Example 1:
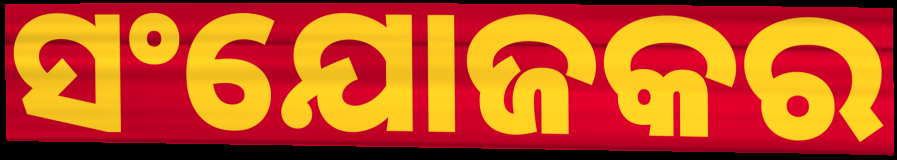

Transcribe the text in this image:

ସଂଯୋଜକର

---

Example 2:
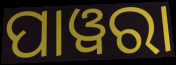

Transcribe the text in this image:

ପାୱରା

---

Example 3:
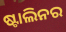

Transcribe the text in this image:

ଷ୍ଟାଲିନର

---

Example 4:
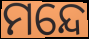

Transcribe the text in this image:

ମନ୍ଦେ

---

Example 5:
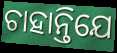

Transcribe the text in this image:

ଚାହାନ୍ତିଯେ